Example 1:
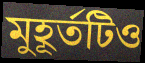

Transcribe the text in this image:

মুহূর্তটিও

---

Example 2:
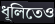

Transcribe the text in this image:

ধূলিতেও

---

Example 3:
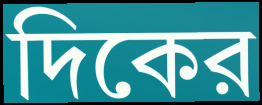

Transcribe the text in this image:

দিকের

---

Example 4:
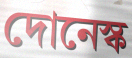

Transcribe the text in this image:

দোনেস্ক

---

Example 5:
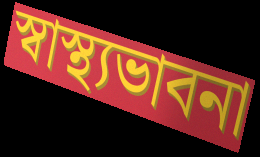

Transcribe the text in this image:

স্বাস্থ্যভাবনা